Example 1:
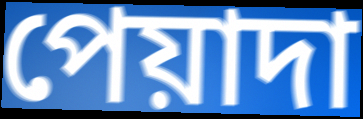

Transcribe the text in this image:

পেয়াদা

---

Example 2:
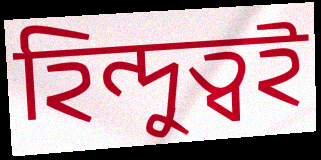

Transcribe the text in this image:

হিন্দুত্বই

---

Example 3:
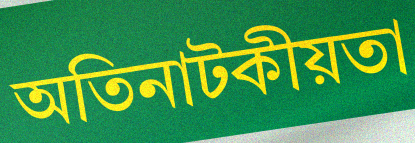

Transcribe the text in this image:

অতিনাটকীয়তা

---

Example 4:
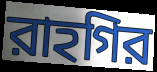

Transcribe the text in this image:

রাহগির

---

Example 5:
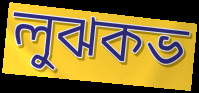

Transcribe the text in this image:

লুঝকভ